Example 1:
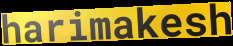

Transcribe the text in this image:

harimakesh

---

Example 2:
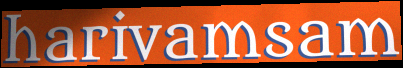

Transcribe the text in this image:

harivamsam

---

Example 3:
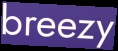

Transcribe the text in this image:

breezy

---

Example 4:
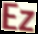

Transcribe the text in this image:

Ez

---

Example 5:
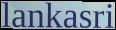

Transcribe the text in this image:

lankasri